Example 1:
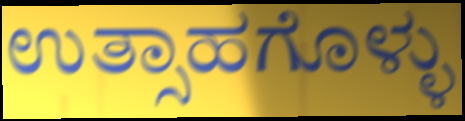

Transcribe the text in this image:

ಉತ್ಸಾಹಗೊಳ್ಳು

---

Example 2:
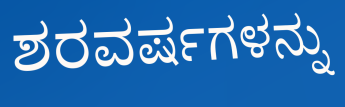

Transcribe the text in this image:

ಶರವರ್ಷಗಳನ್ನು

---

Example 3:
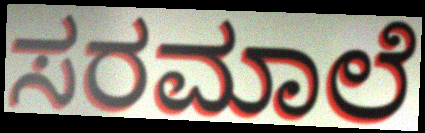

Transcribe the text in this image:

ಸರಮಾಲೆ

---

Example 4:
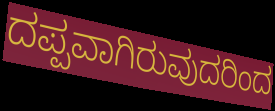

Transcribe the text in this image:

ದಪ್ಪವಾಗಿರುವುದರಿಂದ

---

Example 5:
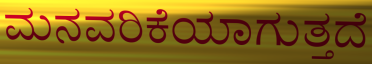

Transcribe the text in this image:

ಮನವರಿಕೆಯಾಗುತ್ತದೆ